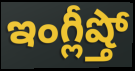
ఇంగ్లీష్తో